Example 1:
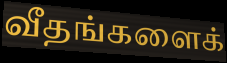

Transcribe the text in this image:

வீதங்களைக்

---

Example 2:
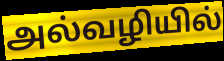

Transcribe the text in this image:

அல்வழியில்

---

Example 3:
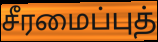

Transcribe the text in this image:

சீரமைப்புத்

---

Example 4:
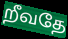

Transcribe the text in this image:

றீவதே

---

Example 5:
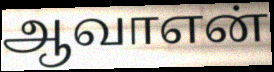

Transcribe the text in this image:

ஆவாஎன்